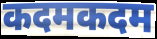
कदमकदम